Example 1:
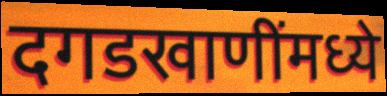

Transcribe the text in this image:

दगडखाणींमध्ये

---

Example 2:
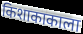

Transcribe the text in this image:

किशाकाकाला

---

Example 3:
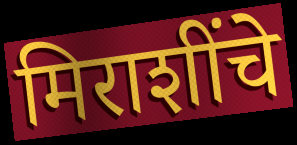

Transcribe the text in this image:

मिराशींचे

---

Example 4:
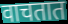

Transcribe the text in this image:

वाचतात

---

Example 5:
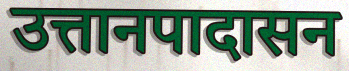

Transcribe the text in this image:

उत्तानपादासन